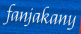
fanjakany